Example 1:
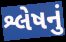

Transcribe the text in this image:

શ્લેષનું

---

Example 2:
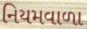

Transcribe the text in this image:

નિયમવાળા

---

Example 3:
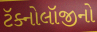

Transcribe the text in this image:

ટૅક્નોલૉજીનો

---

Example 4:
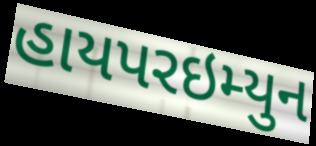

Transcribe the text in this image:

હાયપરઇમ્યુન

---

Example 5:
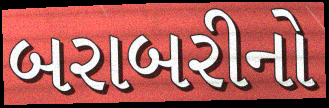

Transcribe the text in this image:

બરાબરીનો